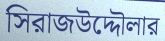
সিরাজউদ্দৌলার